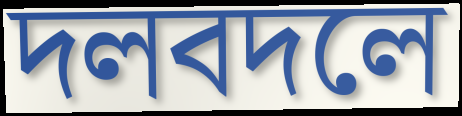
দলবদলে